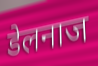
डेलनाज